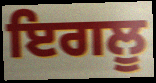
ਇਗਲੂ